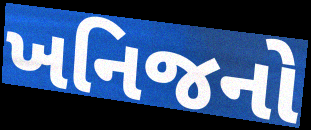
ખનિજનો